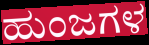
ಹುಂಜಗಳ